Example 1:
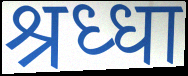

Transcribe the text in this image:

श्रध्धा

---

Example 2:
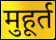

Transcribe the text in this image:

मुहूर्त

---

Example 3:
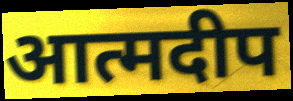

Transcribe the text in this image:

आत्मदीप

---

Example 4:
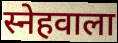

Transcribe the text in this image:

स्नेहवाला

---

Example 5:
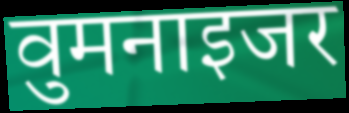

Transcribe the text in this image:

वुमनाइजर